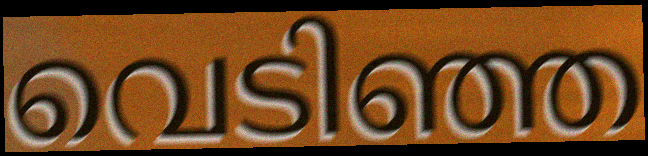
വെടിഞ്ഞ